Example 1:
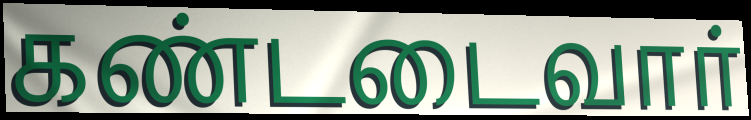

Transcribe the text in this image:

கண்டடைவார்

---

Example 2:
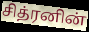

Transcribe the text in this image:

சித்ரனின்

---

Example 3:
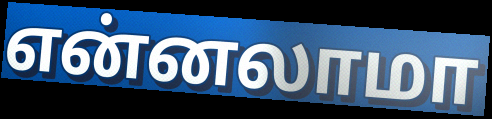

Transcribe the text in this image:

என்னலாமா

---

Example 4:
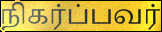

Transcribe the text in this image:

நிகர்ப்பவர்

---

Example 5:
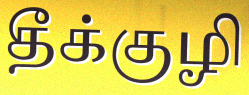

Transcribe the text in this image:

தீக்குழி